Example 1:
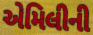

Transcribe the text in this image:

એમિલીની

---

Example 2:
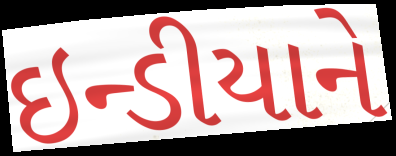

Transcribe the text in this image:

ઇન્ડીયાને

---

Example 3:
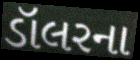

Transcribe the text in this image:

ડૉલરના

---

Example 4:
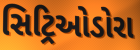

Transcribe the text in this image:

સિટ્રિઓડોરા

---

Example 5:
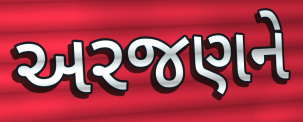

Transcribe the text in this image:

અરજણને